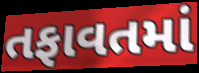
તફાવતમાં